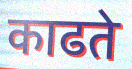
काढते